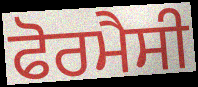
ਫੋਰਮੈਸੀ